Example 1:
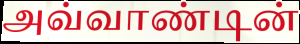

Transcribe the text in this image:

அவ்வாண்டின்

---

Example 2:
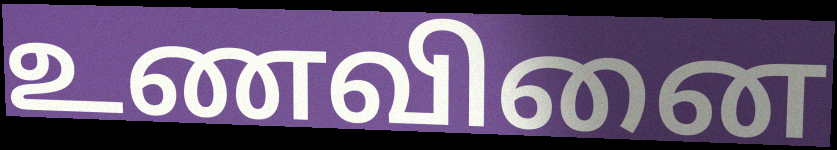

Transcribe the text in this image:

உணவினை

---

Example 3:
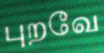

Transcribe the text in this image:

புறவே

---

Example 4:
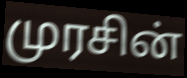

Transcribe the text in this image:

முரசின்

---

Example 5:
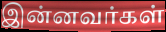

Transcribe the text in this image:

இன்னவர்கள்